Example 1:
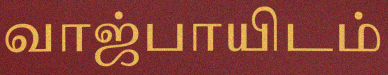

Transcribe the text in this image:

வாஜ்பாயிடம்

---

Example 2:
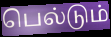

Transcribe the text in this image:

பெல்டும்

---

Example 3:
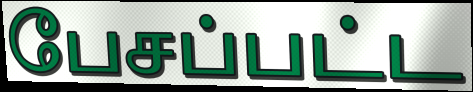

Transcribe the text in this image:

பேசப்பட்ட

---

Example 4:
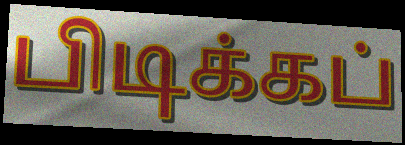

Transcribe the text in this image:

பிடிக்கப்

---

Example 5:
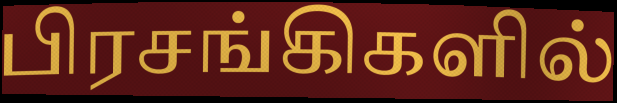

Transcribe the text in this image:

பிரசங்கிகளில்